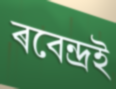
ৰবেন্দ্ৰই